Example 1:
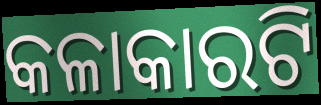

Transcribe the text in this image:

କଳାକାରଟି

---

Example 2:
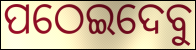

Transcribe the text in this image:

ପଠେଇଦେବୁ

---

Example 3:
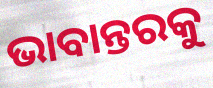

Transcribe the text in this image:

ଭାବାନ୍ତରକୁ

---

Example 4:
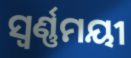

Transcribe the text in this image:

ସ୍ୱର୍ଣ୍ଣମୟୀ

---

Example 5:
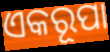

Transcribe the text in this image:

ଏକରୂପା